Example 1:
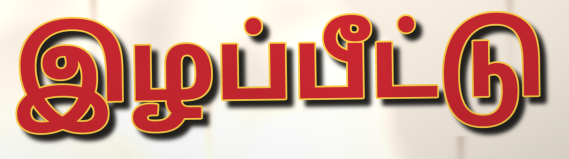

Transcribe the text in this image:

இழப்பீட்டு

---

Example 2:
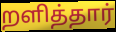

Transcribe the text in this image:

றளித்தார்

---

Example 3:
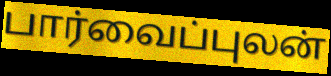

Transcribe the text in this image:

பார்வைப்புலன்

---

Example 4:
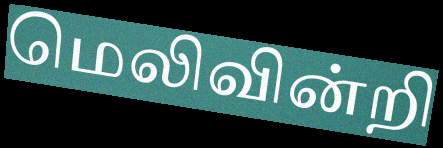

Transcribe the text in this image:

மெலிவின்றி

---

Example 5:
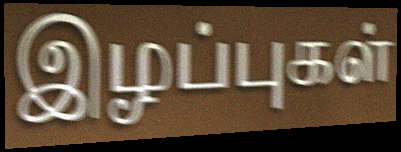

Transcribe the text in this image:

இழப்புகள்